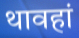
थावहां